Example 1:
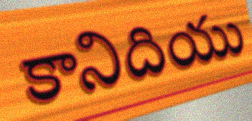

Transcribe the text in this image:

కానిదియు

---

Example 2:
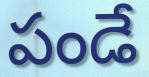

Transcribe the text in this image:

పండే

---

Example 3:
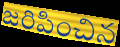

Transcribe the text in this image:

జరిపించిన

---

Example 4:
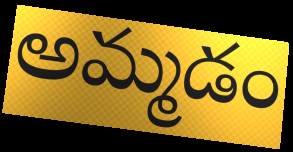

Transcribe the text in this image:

అమ్మడం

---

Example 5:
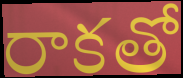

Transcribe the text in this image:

రాకతో